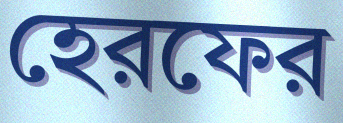
হেরফের